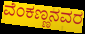
ವೆಂಕಣ್ಣನವರ